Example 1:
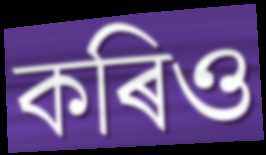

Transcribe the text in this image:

কৰিও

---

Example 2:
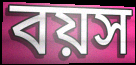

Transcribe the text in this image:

বয়স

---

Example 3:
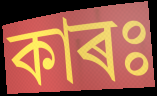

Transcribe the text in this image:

কাৰঃ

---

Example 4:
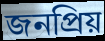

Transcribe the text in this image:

জনপ্ৰিয়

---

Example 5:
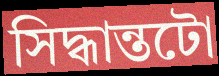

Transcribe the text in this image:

সিদ্ধান্তটো